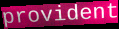
provident